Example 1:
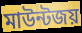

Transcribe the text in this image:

মাউন্টজয়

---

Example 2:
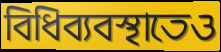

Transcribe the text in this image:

বিধিব্যবস্থাতেও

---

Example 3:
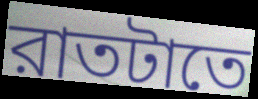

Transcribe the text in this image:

রাতটাতে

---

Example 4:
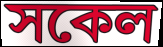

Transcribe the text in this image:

সকেল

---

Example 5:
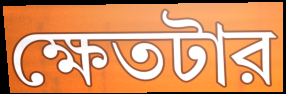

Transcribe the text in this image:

ক্ষেতটার